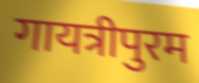
गायत्रीपुरम